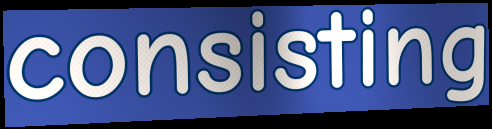
consisting